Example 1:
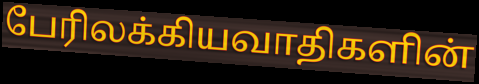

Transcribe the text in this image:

பேரிலக்கியவாதிகளின்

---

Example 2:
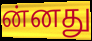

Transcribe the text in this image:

ன்னது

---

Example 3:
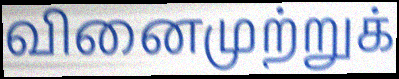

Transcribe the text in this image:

வினைமுற்றுக்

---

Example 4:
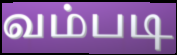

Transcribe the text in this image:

வம்படி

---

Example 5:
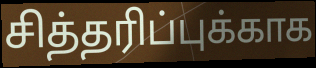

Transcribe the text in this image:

சித்தரிப்புக்காக